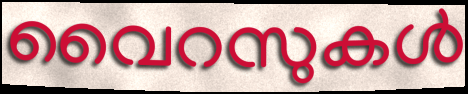
വൈറസുകൾ